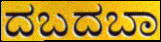
ದಬದಬಾ